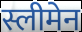
स्लीमेन